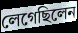
লেগেছিলেন